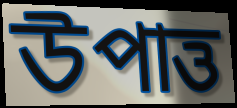
উপাত্ত